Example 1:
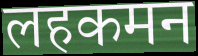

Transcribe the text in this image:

लहकमन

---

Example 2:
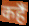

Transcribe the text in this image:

कहैं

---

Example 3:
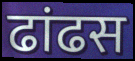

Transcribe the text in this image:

ढांढस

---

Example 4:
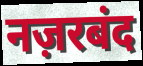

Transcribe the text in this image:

नज़रबंद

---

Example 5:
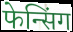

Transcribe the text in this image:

फेन्सिंग